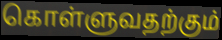
கொள்ளுவதற்கும்